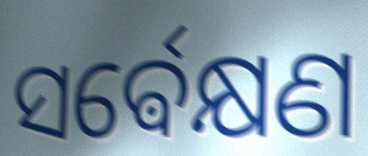
ସର୍ଵେକ୍ଷଣ